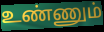
உண்ணும்